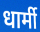
धार्मी